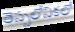
తెస్సలోనికలో